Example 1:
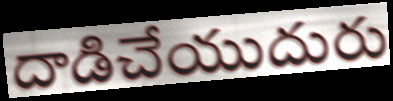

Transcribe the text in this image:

దాడిచేయుదురు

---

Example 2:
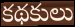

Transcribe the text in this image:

కథకులు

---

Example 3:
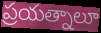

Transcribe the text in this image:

ప్రయత్నాలూ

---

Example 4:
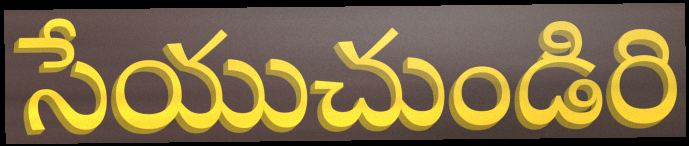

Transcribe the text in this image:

సేయుచుండిరి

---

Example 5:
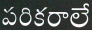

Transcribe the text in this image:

పరికరాలే